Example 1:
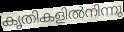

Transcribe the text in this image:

കൃതികളിൽനിന്നു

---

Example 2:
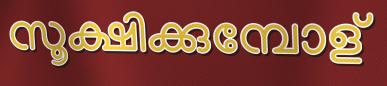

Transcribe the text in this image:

സൂക്ഷിക്കുമ്പോള്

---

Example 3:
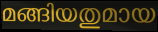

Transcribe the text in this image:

മങ്ങിയതുമായ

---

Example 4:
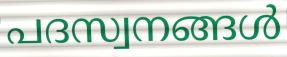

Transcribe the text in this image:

പദസ്വനങ്ങൾ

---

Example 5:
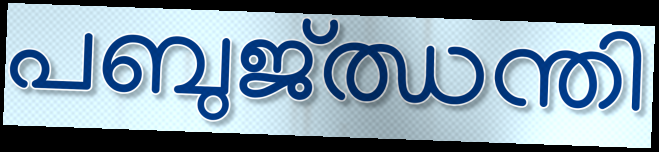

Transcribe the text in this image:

പബുജ്ഝന്തി